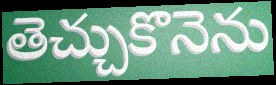
తెచ్చుకొనెను